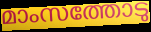
മാംസത്തോടു